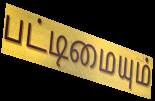
பட்டிமையும்